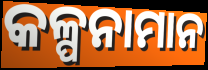
କଳ୍ପନାମାନ